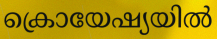
ക്രൊയേഷ്യയിൽ